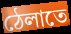
ঠেলাতে